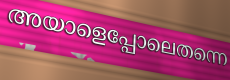
അയാളെപ്പോലെതന്നെ